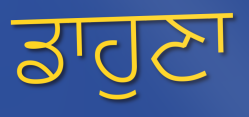
ਡਾਹੁਣਾ